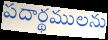
పదార్థములను